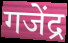
गजेंद्र